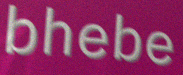
bhebe